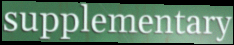
supplementary